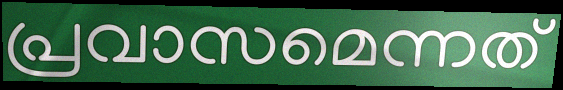
പ്രവാസമെന്നത്